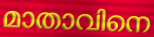
മാതാവിനെ